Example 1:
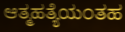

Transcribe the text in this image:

ಆತ್ಮಹತ್ಯೆಯಂತಹ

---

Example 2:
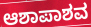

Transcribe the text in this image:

ಆಶಾಪಾಶವ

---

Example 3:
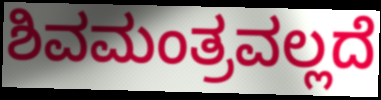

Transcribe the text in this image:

ಶಿವಮಂತ್ರವಲ್ಲದೆ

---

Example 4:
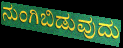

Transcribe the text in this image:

ನುಂಗಿಬಿಡುವುದು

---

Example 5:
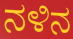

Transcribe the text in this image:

ನಳಿನ